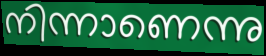
നിന്നാണെന്നു